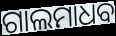
ଗାଲମାଧବ